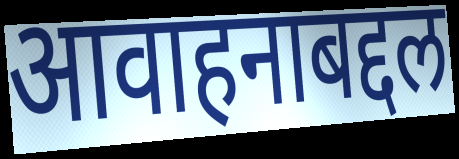
आवाहनाबद्दल